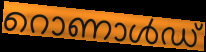
റൊണാൾഡ്